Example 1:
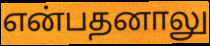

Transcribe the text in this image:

என்பதனாலு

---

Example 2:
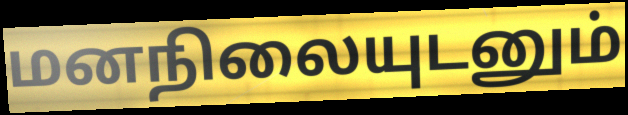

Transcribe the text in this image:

மனநிலையுடனும்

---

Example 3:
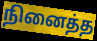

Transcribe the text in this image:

நினைத்த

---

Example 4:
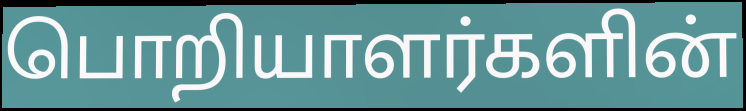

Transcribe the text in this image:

பொறியாளர்களின்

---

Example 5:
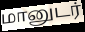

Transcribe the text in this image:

மானுடர்